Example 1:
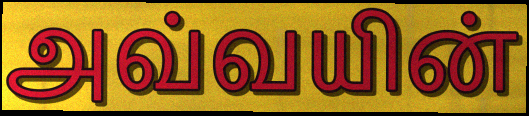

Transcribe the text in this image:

அவ்வயின்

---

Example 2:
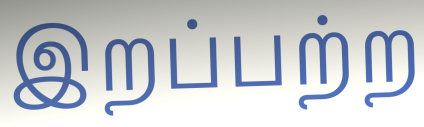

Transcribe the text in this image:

இறப்பற்ற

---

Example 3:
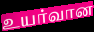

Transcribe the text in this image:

உயர்வான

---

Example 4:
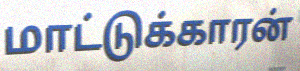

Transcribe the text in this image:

மாட்டுக்காரன்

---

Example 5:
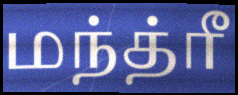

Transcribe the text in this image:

மந்த்ரீ